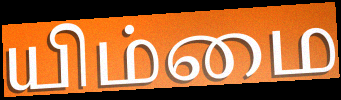
யிம்மை